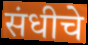
संधीचे